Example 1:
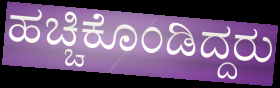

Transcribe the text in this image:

ಹಚ್ಚಿಕೊಂಡಿದ್ದರು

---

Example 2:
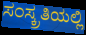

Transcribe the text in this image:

ಸಂಸ್ಕ್ರತಿಯಲ್ಲಿ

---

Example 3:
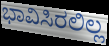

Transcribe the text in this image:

ಭಾವಿಸಿರಲಿಲ್ಲ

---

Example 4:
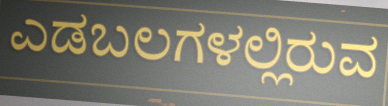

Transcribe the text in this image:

ಎಡಬಲಗಳಲ್ಲಿರುವ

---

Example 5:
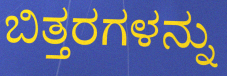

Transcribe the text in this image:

ಬಿತ್ತರಗಳನ್ನು